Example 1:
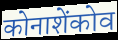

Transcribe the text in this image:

कोनाशेंकोव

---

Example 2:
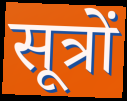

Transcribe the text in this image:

सूत्रों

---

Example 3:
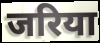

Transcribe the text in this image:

जरिया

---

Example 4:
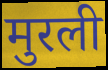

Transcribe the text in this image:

मुरली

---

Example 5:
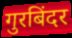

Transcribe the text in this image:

गुरबिंदर